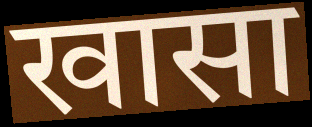
खासा